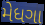
મેધગા